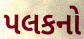
પલકનો